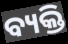
ବ୍ୟକ୍ତି